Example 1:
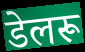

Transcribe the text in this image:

डेलरू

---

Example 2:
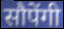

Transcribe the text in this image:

सौपेंगी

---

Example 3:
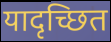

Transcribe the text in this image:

यादृच्छित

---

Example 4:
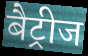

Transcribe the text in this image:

बैट्रीज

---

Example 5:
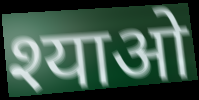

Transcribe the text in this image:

श्याओ